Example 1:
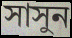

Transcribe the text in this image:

সাসুন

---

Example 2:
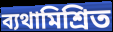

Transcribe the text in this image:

ব্যথামিশ্রিত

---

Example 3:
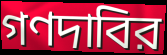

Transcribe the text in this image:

গণদাবির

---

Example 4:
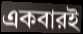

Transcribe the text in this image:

একবারই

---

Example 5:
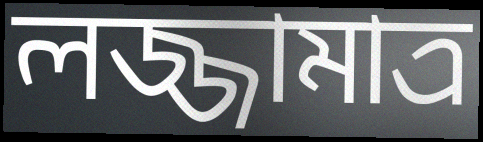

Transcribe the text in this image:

লজ্জামাত্র